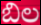
బిల